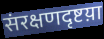
संरक्षणदृष्टय़ा